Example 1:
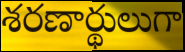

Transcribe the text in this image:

శరణార్థులుగా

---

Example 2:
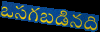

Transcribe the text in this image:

ఒసగబడినది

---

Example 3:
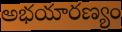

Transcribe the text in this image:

అభయారణ్యం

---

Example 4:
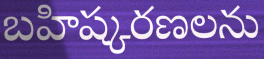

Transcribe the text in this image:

బహిష్కరణలను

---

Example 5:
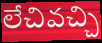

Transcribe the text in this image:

లేచివచ్చి